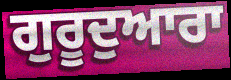
ਗੁਰੂਦੁਆਰਾ